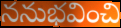
ననుభవించి